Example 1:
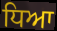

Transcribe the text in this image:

ਧਿਆ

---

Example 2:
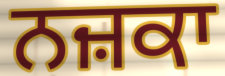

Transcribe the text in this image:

ਨਜ਼ਕਾ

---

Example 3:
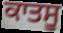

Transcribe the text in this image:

ਕਾਤਸੂ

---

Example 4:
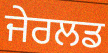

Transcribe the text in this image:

ਜੇਰਲਡ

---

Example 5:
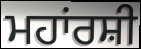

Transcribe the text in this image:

ਮਹਾਂਰਸ਼ੀ